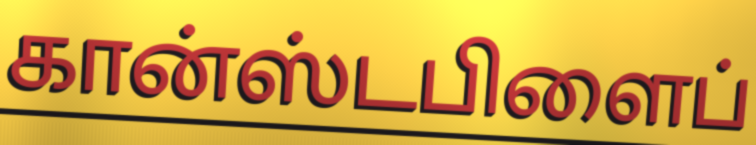
கான்ஸ்டபிளைப்